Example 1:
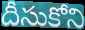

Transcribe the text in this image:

దీసుకోని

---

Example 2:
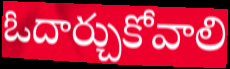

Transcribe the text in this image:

ఓదార్చుకోవాలి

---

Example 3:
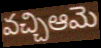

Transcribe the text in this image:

వచ్చిఆమె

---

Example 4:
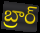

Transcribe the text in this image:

బ్రార్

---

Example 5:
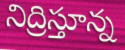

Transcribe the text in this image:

నిద్రిస్తూన్న